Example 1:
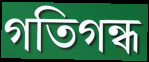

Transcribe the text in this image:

গতিগন্ধ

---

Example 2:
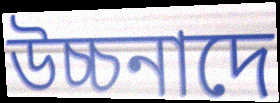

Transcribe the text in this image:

উচ্চনাদে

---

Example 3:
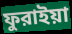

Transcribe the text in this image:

ফুরাইয়া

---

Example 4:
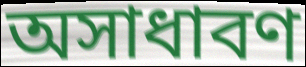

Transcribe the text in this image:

অসাধাবণ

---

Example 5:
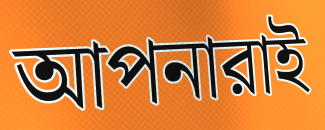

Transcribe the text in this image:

আপনারাই